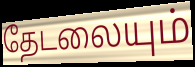
தேடலையும்